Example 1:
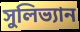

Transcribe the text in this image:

সুলিভ্যান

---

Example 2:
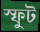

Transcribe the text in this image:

স্ফুট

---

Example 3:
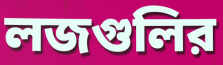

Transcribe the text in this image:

লজগুলির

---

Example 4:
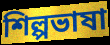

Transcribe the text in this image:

শিল্পভাষা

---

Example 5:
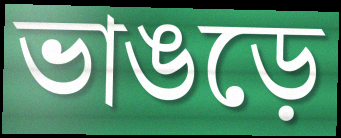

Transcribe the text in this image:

ভাঙড়ে